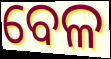
ବେଳ